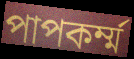
পাপকর্ম্ম